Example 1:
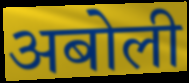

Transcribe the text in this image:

अबोली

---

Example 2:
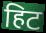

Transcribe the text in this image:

हिट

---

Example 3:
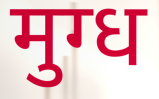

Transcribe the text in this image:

मुग्ध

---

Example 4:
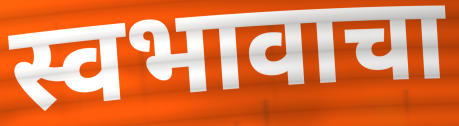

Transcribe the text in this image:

स्वभावाचा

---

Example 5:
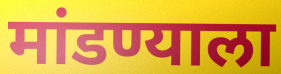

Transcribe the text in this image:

मांडण्याला